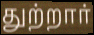
துற்றார்